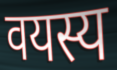
वयस्य